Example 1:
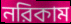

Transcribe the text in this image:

নরিকাম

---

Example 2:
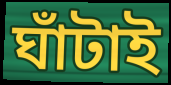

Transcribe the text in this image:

ঘাঁটাই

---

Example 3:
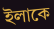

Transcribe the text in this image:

ইলাকে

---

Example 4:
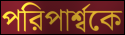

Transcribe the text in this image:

পরিপার্শ্বকে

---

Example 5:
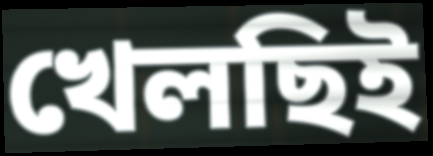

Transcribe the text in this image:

খেলছিই